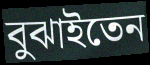
বুঝাইতেন